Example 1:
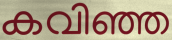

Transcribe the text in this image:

കവിഞ്ഞ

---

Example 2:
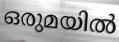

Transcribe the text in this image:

ഒരുമയിൽ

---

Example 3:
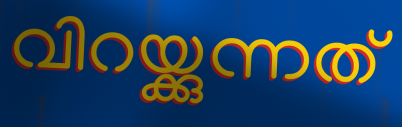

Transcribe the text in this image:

വിറയ്ക്കുന്നത്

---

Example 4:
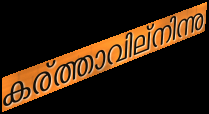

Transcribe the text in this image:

കര്ത്താവില്നിന്നു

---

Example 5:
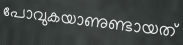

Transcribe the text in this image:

പോവുകയാണുണ്ടായത്